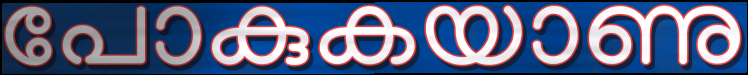
പോകുകയാണു